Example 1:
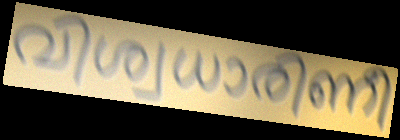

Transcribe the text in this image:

വിശ്വധാരിണീ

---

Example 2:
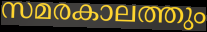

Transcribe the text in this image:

സമരകാലത്തും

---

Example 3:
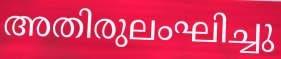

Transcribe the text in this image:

അതിരുലംഘിച്ചു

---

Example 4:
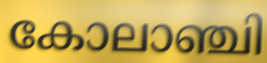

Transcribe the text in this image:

കോലാഞ്ചി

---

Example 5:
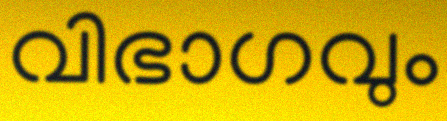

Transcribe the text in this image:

വിഭാഗവും